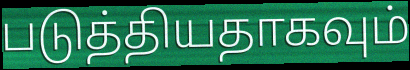
படுத்தியதாகவும்